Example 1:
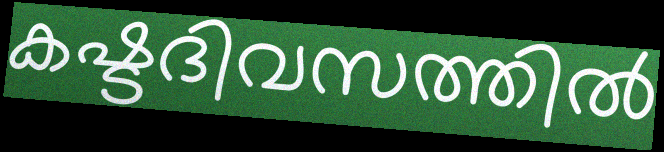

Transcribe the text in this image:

കഷ്ടദിവസത്തിൽ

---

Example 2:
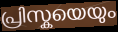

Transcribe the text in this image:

പ്രിസ്കയെയും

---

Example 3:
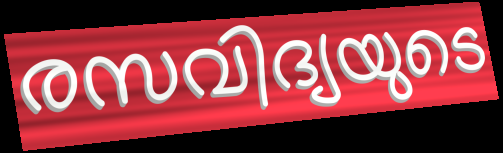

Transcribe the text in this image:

രസവിദ്യയുടെ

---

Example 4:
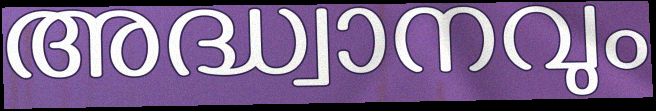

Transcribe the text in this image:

അദ്ധ്വാനവും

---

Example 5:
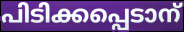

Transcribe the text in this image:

പിടിക്കപ്പെടാന്